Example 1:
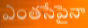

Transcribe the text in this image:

ఎంతసేపైనా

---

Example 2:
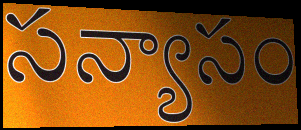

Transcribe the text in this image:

సన్యాసం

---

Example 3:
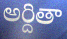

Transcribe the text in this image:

అర్దితా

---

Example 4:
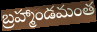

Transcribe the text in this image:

బ్రహ్మాండమంత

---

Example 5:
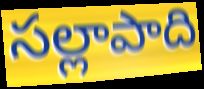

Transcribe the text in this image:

సల్లాపాది